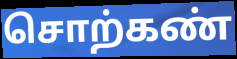
சொற்கண்